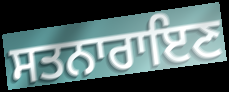
ਸਤਨਾਰਾਇਣ